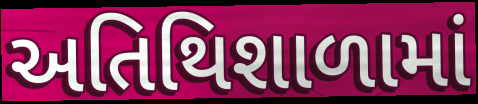
અતિથિશાળામાં